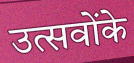
उत्सवोंके